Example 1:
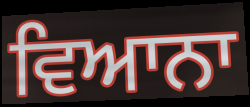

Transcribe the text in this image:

ਵਿਆਨਾ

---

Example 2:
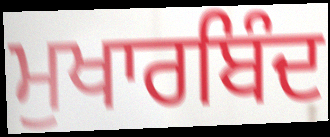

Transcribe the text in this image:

ਮੁਖਾਰਬਿੰਦ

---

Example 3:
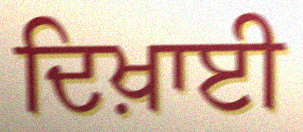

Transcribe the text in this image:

ਦਿਖ਼ਾਈ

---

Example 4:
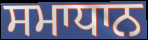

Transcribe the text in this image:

ਸਮਾਧਾਨ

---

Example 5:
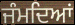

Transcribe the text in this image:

ਜੰਮਦਿਆਂ